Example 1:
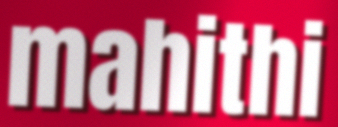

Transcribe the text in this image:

mahithi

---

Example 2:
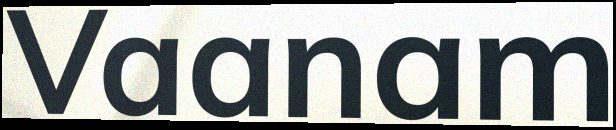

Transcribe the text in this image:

Vaanam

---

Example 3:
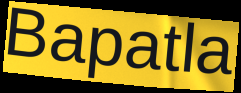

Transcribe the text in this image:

Bapatla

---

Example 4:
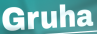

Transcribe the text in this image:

Gruha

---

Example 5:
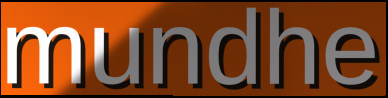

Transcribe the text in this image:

mundhe